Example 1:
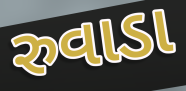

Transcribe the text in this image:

રુવાડા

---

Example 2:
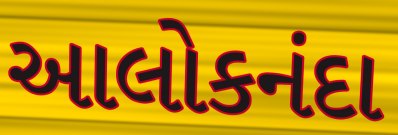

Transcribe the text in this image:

આલોકનંદા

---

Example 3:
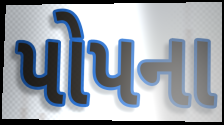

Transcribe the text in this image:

પોપના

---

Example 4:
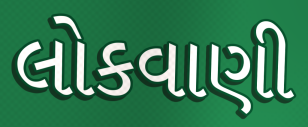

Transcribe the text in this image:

લોકવાણી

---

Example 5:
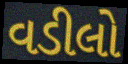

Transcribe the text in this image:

વડીલો